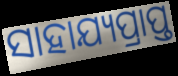
ସାହାଯ୍ୟପ୍ରାପ୍ତ